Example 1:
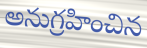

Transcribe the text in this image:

అనుగ్రహించిన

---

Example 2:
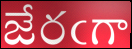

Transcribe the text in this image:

జేరఁగా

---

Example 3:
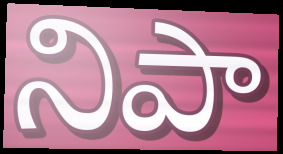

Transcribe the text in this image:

నిపా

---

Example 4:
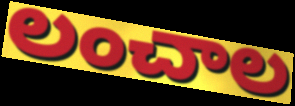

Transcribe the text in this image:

లంచాల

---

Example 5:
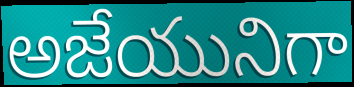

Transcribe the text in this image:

అజేయునిగా